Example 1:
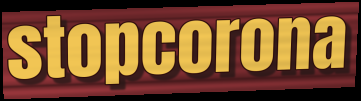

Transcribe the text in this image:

stopcorona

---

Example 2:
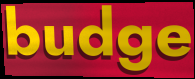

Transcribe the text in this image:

budge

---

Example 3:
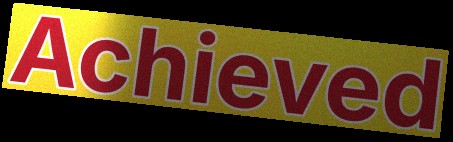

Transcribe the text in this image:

Achieved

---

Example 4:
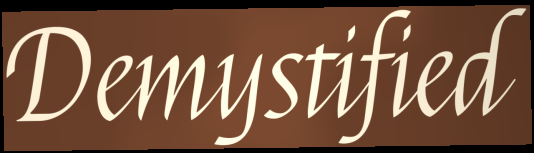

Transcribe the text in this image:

Demystified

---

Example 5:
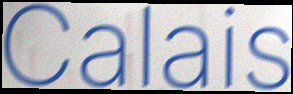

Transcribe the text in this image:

Calais